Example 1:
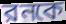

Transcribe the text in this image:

রনকে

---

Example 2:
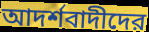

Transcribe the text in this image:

আদর্শবাদীদের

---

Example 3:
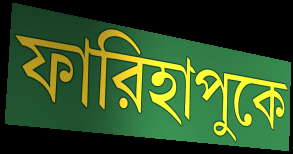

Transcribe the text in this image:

ফারিহাপুকে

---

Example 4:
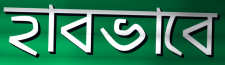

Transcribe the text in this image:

হাবভাবে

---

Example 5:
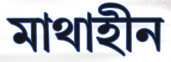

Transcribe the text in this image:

মাথাহীন